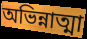
অভিন্নাত্মা